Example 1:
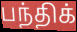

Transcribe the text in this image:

பந்திக்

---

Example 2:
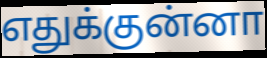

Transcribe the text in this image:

எதுக்குன்னா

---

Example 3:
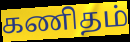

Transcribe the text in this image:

கணிதம்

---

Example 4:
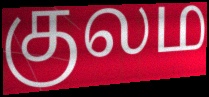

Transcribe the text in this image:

குலம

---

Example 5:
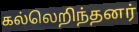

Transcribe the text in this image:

கல்லெறிந்தனர்